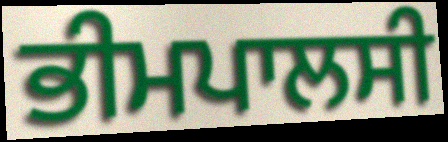
ਭੀਮਪਾਲਸੀ